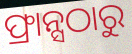
ଫ୍ରାନ୍ସଠାରୁ